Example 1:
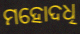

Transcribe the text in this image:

ମହୋଦଧି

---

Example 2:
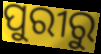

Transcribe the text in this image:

ପୁରୀରୁ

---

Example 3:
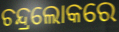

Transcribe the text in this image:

ଚନ୍ଦ୍ରଲୋକରେ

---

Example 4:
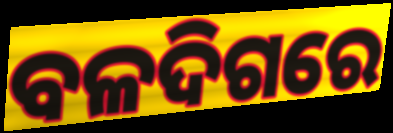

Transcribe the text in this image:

ବଳଦିଗରେ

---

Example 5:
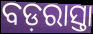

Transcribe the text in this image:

ବଡ଼ରାସ୍ତା